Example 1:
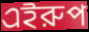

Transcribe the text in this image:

এইরুপ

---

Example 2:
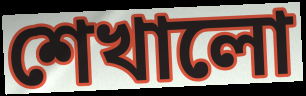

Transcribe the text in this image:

শেখালো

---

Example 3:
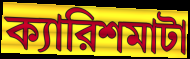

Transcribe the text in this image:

ক্যারিশমাটা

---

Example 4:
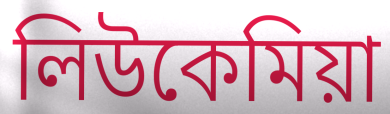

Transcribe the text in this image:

লিউকেমিয়া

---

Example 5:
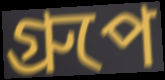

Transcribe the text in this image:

গ্রুপে